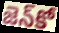
జెన్‌కో